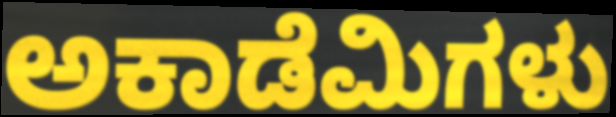
ಅಕಾಡೆಮಿಗಳು